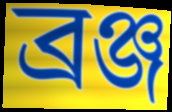
ব্ৰঞ্জ